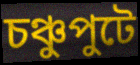
চঞ্চুপুটে